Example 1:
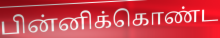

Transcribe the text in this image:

பின்னிக்கொண்ட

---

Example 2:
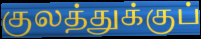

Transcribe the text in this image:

குலத்துக்குப்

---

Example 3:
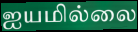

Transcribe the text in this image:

ஐயமில்லை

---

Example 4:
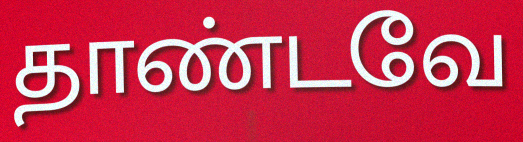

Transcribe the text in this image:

தாண்டவே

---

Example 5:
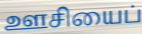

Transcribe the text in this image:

ஊசியைப்